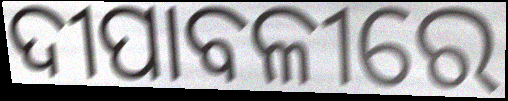
ଦୀପାବଳୀରେ